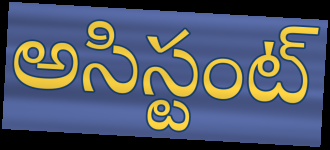
అసిస్టంట్